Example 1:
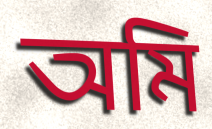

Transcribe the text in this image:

অমি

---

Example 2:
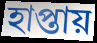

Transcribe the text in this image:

হাপ্তায়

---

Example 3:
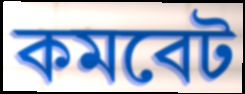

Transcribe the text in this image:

কমবেট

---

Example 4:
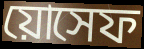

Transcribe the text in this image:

য়োসেফ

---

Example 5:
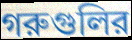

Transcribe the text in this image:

গরুগুলির